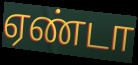
ஏண்டா